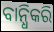
ବାନ୍ଧିକରି